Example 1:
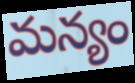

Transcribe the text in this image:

మన్యం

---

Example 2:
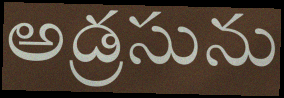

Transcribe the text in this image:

అడ్రసును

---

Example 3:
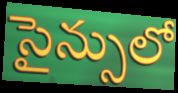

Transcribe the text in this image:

సైన్సులో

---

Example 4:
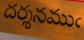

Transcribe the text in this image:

దర్శనముఁ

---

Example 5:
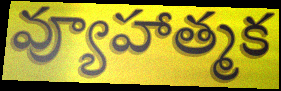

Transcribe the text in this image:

వ్యూహాత్మక